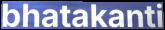
bhatakanti